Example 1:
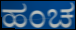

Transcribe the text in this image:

ಹಂಚ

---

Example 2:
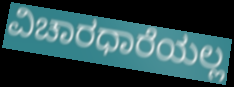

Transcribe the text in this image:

ವಿಚಾರಧಾರೆಯಲ್ಲ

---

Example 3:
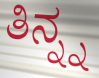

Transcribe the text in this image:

ತಿನ್ನ್ನ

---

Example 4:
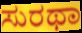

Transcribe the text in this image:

ಸುರಥಾ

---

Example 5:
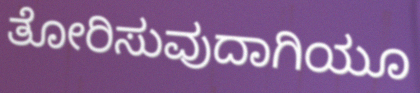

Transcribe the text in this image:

ತೋರಿಸುವುದಾಗಿಯೂ